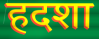
हदशा